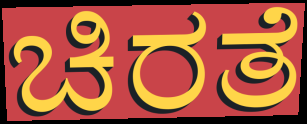
ಚಿರತೆ